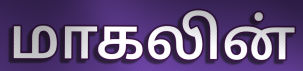
மாகலின்